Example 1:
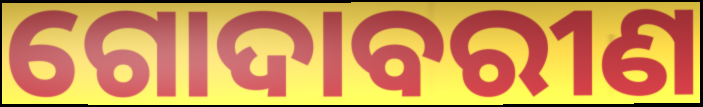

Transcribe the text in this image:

ଗୋଦାବରୀଣ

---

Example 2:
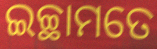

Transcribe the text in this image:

ଇଚ୍ଛାମତେ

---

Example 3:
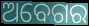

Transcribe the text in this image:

ଅବେଗର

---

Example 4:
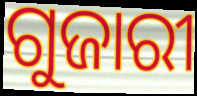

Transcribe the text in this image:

ଗୁଜାରୀ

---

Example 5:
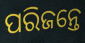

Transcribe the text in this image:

ପରିଜନ୍ତେ